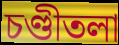
চণ্ডীতলা